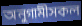
অনুগামীসকল